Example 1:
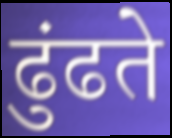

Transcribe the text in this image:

ढुंढते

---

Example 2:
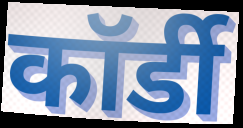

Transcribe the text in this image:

कॉर्डी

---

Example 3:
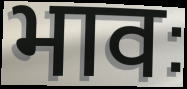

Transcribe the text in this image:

भावः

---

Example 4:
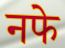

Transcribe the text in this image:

नफे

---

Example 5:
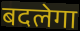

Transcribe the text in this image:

बदलेगा